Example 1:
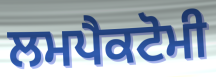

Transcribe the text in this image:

ਲਮਪੈਕਟੋਮੀ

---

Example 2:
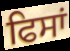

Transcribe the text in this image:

ਫਿਸਾਂ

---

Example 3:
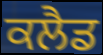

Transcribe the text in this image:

ਕਲੈਡ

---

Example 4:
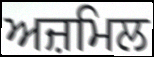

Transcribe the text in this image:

ਅਜ਼ਮਿਲ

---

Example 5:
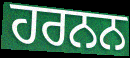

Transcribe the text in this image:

ਹਰਨਨ